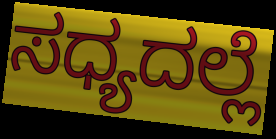
ಸಧ್ಯದಲ್ಲೆ